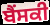
ਬੈਂਸਕੀ